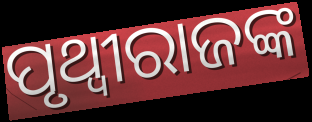
ପୃଥ୍ୱୀରାଜଙ୍କ